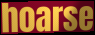
hoarse